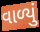
વાળ્યું